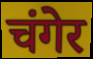
चंगेर